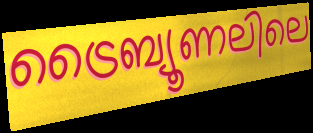
ട്രൈബ്യൂണലിലെ